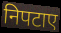
निपटाए